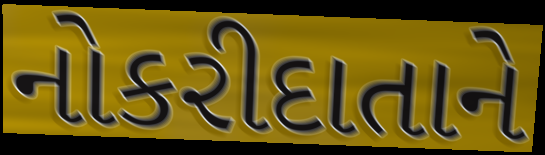
નોકરીદાતાને